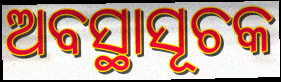
ଅବସ୍ଥାସୂଚକ